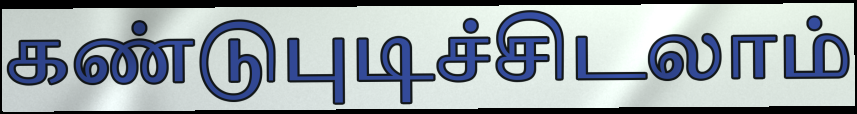
கண்டுபுடிச்சிடலாம்